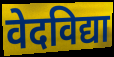
वेदविद्या